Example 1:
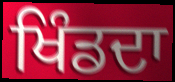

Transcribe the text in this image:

ਖਿੰਡਦਾ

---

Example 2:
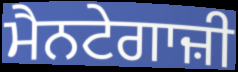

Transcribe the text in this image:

ਮੈਨਟੇਗਾਜ਼ੀ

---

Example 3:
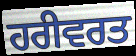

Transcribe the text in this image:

ਹਰੀਵਰਤ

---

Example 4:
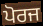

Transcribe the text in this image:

ਪੋਰਜ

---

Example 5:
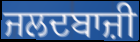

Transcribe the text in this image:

ਜਲਦਬਾਜ਼ੀ